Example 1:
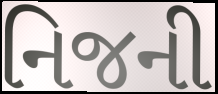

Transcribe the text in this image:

નિજની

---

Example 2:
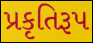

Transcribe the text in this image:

પ્રકૃતિરૂપ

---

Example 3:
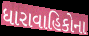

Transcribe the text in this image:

ધારાવાહિકોના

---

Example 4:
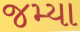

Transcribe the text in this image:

જમ્યા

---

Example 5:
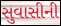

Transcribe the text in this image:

સુવાસીની